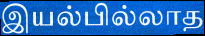
இயல்பில்லாத